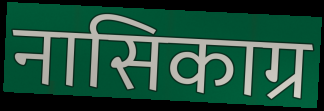
नासिकाग्र